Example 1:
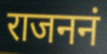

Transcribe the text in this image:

राजननं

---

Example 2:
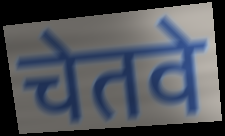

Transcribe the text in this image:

चेतवे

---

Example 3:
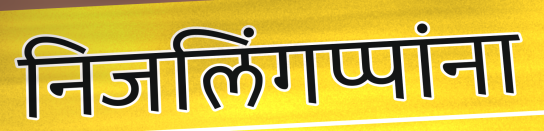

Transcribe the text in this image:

निजलिंगप्पांना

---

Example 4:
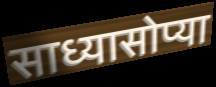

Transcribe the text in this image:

साध्यासोप्या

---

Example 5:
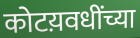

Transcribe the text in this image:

कोटय़वधींच्या